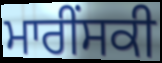
ਮਾਰੀੰਸਕੀ